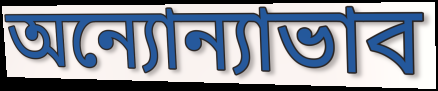
অন্যোন্যাভাব